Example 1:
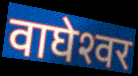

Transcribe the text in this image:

वाघेश्वर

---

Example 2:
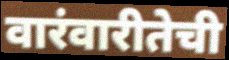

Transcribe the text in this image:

वारंवारीतेची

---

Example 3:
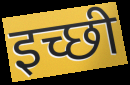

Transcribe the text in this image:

इच्छी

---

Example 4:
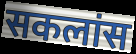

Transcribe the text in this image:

सकलांस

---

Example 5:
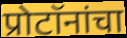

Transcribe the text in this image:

प्रोटॉनांचा